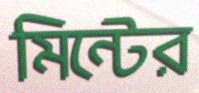
মিন্টের